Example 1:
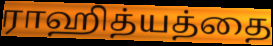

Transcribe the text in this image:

ராஹித்யத்தை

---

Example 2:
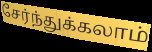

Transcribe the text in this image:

சேர்ந்துக்கலாம்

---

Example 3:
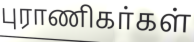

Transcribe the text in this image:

புராணிகர்கள்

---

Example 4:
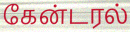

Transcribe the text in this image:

கேன்டரல்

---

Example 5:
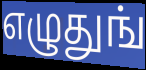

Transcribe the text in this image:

எழுதுங்